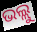
ଭଲ୍ଲୁ